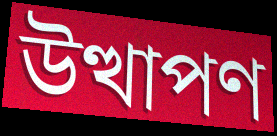
উত্থাপণ